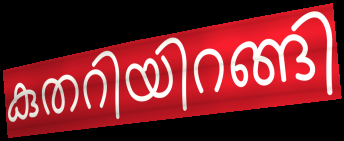
കുതറിയിറങ്ങി